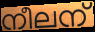
നീലന്